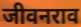
जीवनराव